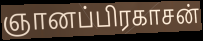
ஞானப்பிரகாசன்